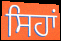
ਸਿਹਾਂ